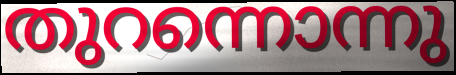
തുറന്നൊന്നു